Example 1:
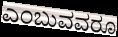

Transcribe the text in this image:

ಎಂಬುವವರೂ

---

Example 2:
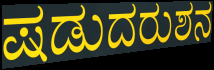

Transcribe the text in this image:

ಷಡುದರುಶನ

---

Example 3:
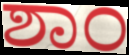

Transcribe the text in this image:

ಶಾಂ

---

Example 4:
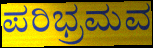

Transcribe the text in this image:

ಪರಿಭ್ರಮವ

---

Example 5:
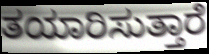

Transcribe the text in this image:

ತಯಾರಿಸುತ್ತಾರೆ